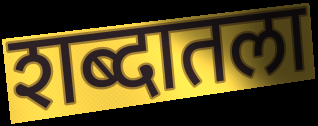
शब्दातला